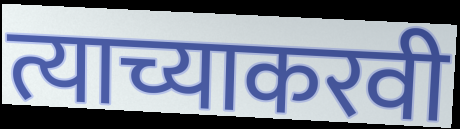
त्याच्याकरवी